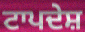
ਟਾਪਦੇਸ਼